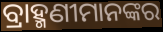
ବ୍ରାହ୍ମଣୀମାନଙ୍କର